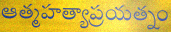
ఆత్మహత్యాప్రయత్నం